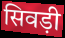
सिवड़ी